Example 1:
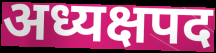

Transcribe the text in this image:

अध्यक्षपद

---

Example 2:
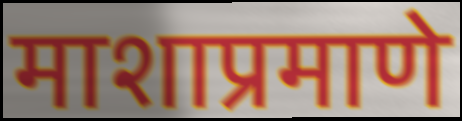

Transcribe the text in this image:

माशाप्रमाणे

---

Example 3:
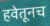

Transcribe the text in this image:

हवेतूनच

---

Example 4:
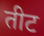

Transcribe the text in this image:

तीट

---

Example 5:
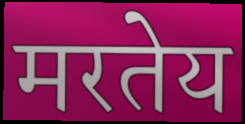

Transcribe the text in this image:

मरतेय